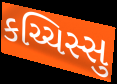
કચ્ચિસ્સુ